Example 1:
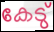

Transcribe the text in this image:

കേടു്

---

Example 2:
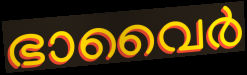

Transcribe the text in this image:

ഭാവൈർ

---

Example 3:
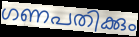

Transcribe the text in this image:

ഗണപതിക്കും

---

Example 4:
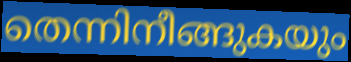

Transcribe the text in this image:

തെന്നിനീങ്ങുകയും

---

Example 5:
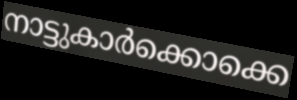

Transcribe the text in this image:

നാട്ടുകാർക്കൊക്കെ